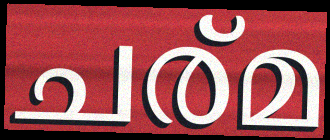
ചര്മ